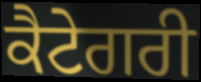
ਕੈਟੇਗਰੀ